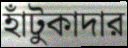
হাঁটুকাদার